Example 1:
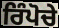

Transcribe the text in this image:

ਰਿੰਪੋਚੇ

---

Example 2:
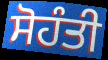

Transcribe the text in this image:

ਸੋਹੰਤੀ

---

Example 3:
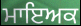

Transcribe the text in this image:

ਮਾਇਅਕ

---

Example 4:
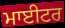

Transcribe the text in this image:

ਮਾਈਟਰ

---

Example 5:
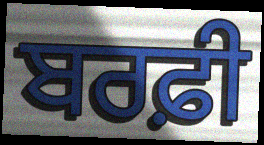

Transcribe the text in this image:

ਬਰਫ਼ੀ